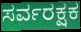
ಸರ್ವರಕ್ಷಕ